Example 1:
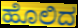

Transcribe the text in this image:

ಹೊಲಿದ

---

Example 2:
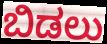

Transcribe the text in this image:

ಬಿಡಲು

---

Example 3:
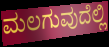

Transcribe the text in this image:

ಮಲಗುವುದೆಲ್ಲಿ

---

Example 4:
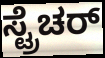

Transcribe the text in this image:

ಸ್ಟ್ರೆಚರ್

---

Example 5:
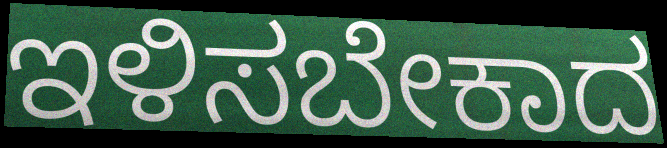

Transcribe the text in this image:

ಇಳಿಸಬೇಕಾದ